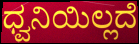
ಧ್ವನಿಯಿಲ್ಲದೆ